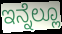
ಇನ್ನೆಲ್ಲೂ